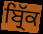
ਬ੍ਰਿੱਕ